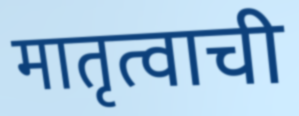
मातृत्वाची